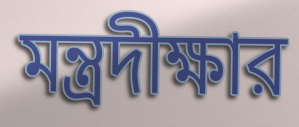
মন্ত্রদীক্ষার